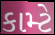
કામ્ટે